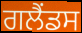
ਗਲੈਂਡਸ